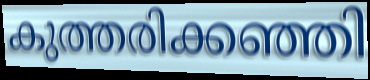
കുത്തരിക്കഞ്ഞി